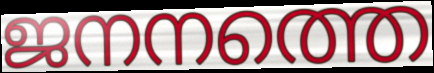
ജനനത്തെ